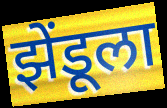
झेंडूला